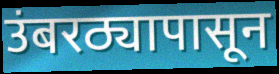
उंबरठ्यापासून